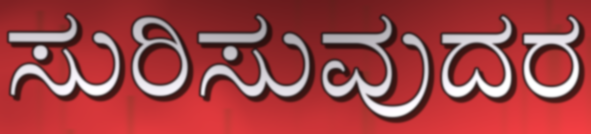
ಸುರಿಸುವುದರ